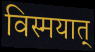
विस्मयात्